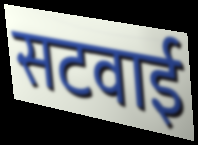
सटवाई